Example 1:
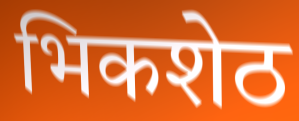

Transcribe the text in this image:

भिकशेठ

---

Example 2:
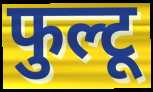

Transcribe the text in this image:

फुल्टू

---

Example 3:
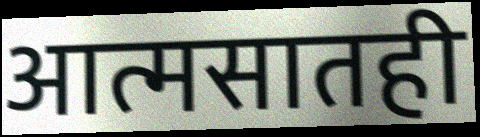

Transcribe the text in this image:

आत्मसातही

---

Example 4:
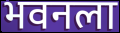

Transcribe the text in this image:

भवनला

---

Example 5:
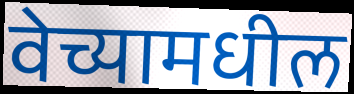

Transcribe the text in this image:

वेच्यामधील